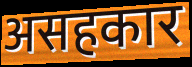
असहकार